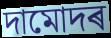
দামোদৰ